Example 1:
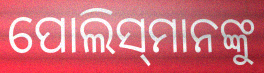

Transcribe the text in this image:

ପୋଲିସ୍‌ମାନଙ୍କୁ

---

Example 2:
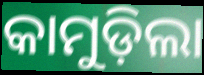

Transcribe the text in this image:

କାମୁଡ଼ିଲା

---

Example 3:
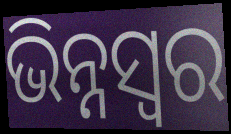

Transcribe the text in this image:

ଭିନ୍ନସ୍ବର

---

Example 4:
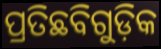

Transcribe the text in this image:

ପ୍ରତିଛବିଗୁଡ଼ିକ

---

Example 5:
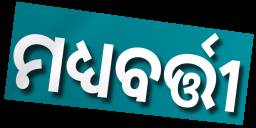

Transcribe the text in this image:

ମଧ୍ୟବର୍ତ୍ତୀ